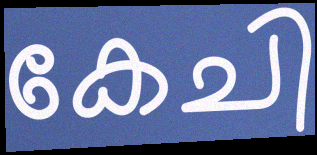
കേചി